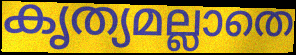
കൃത്യമല്ലാതെ